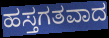
ಹಸ್ತಗತವಾದ